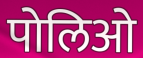
पोलिओ